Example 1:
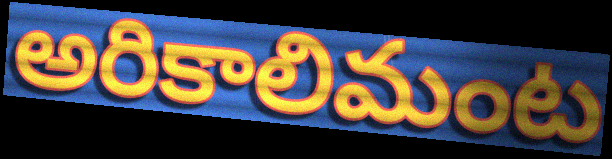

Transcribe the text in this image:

అరికాలిమంట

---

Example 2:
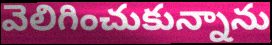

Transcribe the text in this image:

వెలిగించుకున్నాను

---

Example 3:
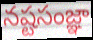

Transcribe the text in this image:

నష్టసంజ్ఞా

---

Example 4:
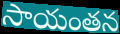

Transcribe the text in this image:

సాయంతన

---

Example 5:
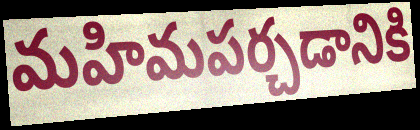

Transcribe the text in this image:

మహిమపర్చడానికి